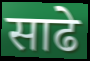
साढे